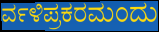
ರ್ವಳಿಪ್ರಕರಮಂದು